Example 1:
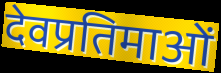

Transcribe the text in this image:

देवप्रतिमाओं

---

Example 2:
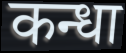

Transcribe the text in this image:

कन्धा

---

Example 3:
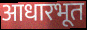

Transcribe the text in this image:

आधारभूत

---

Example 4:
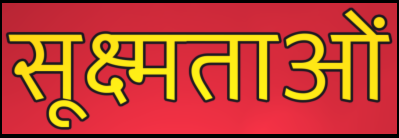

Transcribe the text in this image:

सूक्ष्मताओं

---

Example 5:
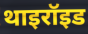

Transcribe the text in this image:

थाइरॉइड